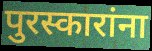
पुरस्कारांना